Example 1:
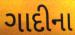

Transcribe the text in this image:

ગાદીના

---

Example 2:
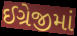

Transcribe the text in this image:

ઈગ્રેજીમાં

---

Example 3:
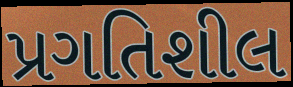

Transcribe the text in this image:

પ્રગતિશીલ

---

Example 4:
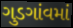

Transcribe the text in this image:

ગુડગાંવમાં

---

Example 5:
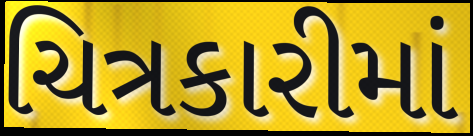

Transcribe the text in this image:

ચિત્રકારીમાં